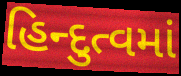
હિન્દુત્વમાં